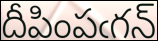
దీపింపఁగన్